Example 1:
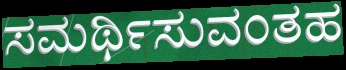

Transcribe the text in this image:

ಸಮರ್ಥಿಸುವಂತಹ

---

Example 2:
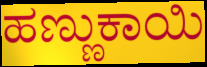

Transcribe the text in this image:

ಹಣ್ಣುಕಾಯಿ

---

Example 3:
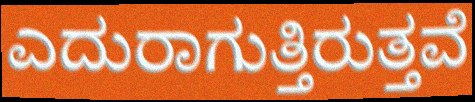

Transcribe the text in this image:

ಎದುರಾಗುತ್ತಿರುತ್ತವೆ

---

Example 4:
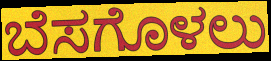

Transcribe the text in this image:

ಬೆಸಗೊಳಲು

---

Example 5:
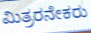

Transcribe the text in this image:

ಮಿತ್ರರನೇಕರು